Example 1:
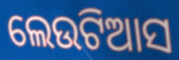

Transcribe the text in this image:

ଲେଉଟିଆସ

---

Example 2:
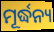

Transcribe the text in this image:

ମୂର୍ଦ୍ଧନ୍ୟ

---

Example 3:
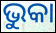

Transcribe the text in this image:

ଭୁକା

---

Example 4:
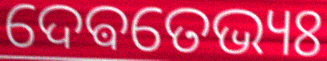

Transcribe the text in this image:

ଦେଵତେଭ୍ୟଃ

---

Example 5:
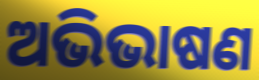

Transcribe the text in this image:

ଅଭିଭାଷଣ